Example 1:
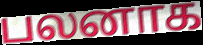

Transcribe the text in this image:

பலனாக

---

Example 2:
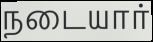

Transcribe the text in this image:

நடையார்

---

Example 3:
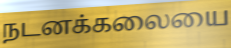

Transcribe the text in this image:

நடனக்கலையை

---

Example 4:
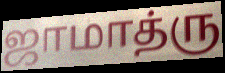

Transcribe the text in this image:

ஜாமாத்ரு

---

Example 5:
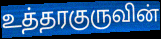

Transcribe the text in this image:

உத்தரகுருவின்